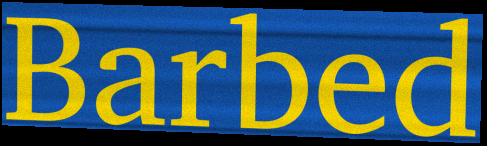
Barbed